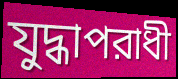
যুদ্ধাপরাধী